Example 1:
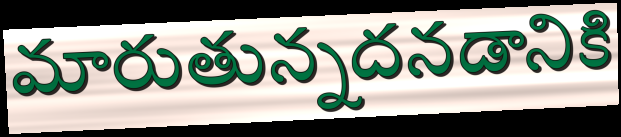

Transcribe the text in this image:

మారుతున్నదనడానికి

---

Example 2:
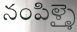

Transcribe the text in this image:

నంపిళ్ళై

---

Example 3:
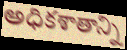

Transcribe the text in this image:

అధికశాతాన్ని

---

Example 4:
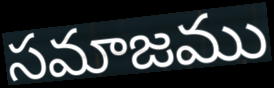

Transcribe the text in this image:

సమాజము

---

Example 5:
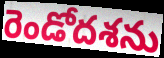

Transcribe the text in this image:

రెండోదశను